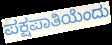
ಪಕ್ಷಪಾತಿಯೆಂದು